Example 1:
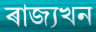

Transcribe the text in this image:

ৰাজ্যখন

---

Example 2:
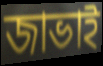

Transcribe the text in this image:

জাভাই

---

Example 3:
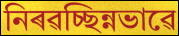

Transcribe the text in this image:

নিৰৱচ্ছিন্নভাৱে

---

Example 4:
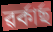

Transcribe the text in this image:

ৱৰ্কাৰ্ছ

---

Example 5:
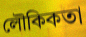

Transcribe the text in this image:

লৌকিকতা